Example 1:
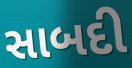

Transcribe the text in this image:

સાબદી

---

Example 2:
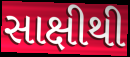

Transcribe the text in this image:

સાક્ષીથી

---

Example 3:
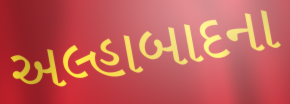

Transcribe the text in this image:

અલ્હાબાદના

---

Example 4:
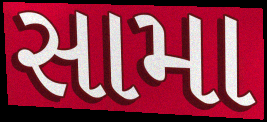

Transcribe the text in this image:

સામા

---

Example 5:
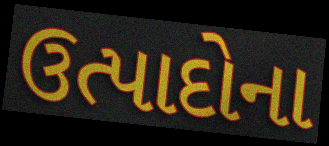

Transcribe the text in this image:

ઉત્પાદોના